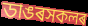
ডাঙৰসকলৰ